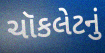
ચૉકલેટનું